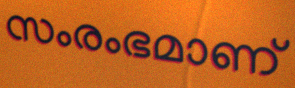
സംരംഭമാണ്